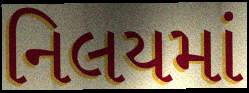
નિલયમાં